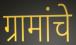
ग्रामांचे